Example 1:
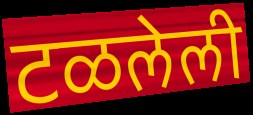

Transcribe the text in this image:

टळलेली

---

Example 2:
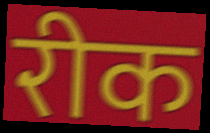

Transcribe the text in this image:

रीक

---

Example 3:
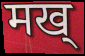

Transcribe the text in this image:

मख्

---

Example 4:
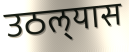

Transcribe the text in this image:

उठल्यास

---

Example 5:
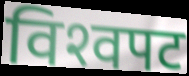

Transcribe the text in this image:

विश्वपट